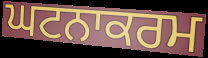
ਘਟਨਾਕਰਮ